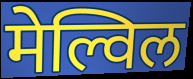
मेल्विल